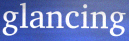
glancing